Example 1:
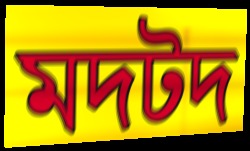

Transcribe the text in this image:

মদটদ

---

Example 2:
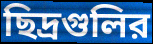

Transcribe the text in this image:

ছিদ্রগুলির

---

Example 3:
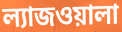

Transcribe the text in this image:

ল্যাজওয়ালা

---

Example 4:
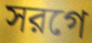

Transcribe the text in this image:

সরগে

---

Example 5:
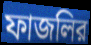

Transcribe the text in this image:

ফাজলির